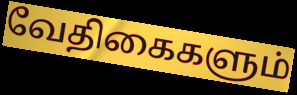
வேதிகைகளும்